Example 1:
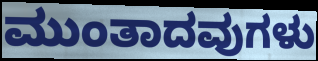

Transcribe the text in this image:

ಮುಂತಾದವುಗಳು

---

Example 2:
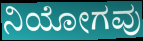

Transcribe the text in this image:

ನಿಯೋಗವು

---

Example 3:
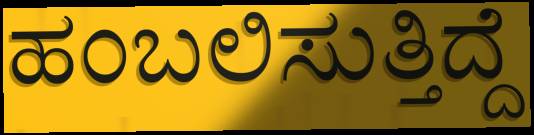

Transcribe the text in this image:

ಹಂಬಲಿಸುತ್ತಿದ್ದೆ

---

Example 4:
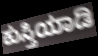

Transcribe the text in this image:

ಕುಸ್ತಿಯಾಡಿ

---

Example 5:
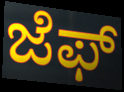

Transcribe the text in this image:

ಜೆಫ್